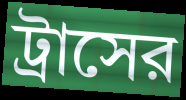
ট্রাসের